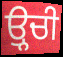
ਉ੍ਨਚੀ